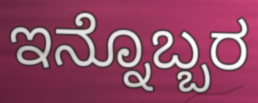
ಇನ್ನೊಬ್ಬರ